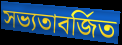
সভ্যতাবর্জিত